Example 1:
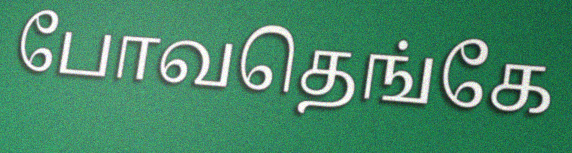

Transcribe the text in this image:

போவதெங்கே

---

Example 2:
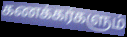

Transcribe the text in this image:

கணக்கர்களும்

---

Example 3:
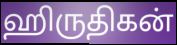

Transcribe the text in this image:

ஹிருதிகன்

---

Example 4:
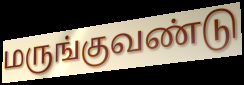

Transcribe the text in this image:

மருங்குவண்டு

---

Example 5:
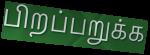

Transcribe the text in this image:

பிறப்பறுக்க